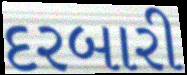
દરબારી